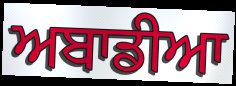
ਅਬਾਡੀਆ